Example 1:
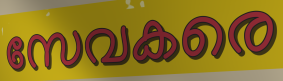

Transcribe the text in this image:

സേവകരെ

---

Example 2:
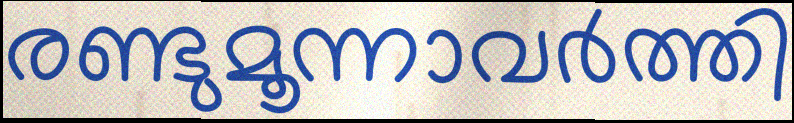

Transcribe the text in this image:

രണ്ടുമൂന്നാവർത്തി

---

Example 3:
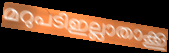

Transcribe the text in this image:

മറുപടിഇല്ലാതാക്കൂ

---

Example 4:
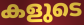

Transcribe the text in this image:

കളുടെ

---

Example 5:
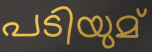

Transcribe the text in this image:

പടിയുമ്